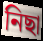
নিছা